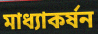
মাধ্যাকর্ষন